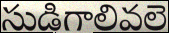
సుడిగాలివలె